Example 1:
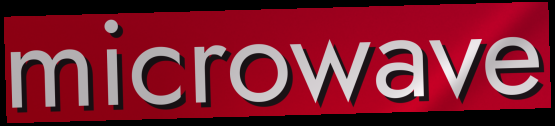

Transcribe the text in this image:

microwave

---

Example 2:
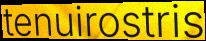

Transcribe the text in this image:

tenuirostris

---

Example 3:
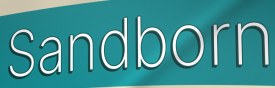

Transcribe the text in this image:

Sandborn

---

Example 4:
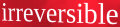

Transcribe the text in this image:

irreversible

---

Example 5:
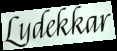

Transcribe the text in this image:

Lydekkar